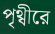
পৃথ্বীরে